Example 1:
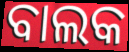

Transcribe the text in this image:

ବାଲକ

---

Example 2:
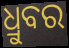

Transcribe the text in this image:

ଧ୍ରୁବର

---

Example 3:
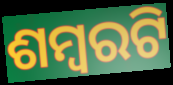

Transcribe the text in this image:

ଶମ୍ବରଟି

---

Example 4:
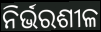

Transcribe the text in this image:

ନିର୍ଭରଶୀଳ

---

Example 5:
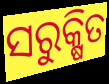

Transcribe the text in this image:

ସରୁକ୍ଷିତ